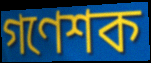
গণেশক